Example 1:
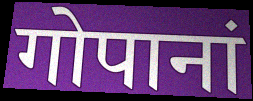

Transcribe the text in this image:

गोपानां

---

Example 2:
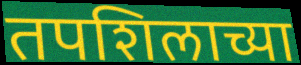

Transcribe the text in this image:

तपशिलाच्या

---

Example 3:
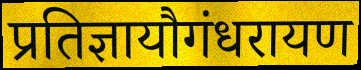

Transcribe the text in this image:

प्रतिज्ञायौगंधरायण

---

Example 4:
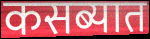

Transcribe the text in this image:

कसब्यात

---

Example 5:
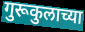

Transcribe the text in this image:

गुरूकुलाच्या